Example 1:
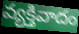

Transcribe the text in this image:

వ్యక్తివాదం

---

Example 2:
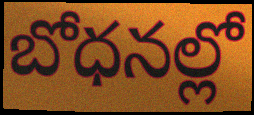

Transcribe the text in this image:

బోధనల్లో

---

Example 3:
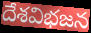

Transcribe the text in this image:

దేశవిభజన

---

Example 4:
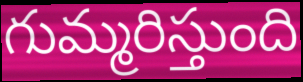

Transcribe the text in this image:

గుమ్మరిస్తుంది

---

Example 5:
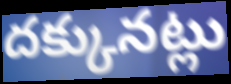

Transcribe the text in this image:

దక్కునట్లు